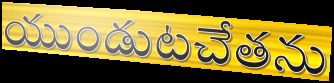
యుండుటచేతను